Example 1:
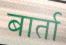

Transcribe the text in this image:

बार्ता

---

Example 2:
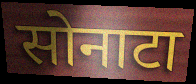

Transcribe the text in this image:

सोनाटा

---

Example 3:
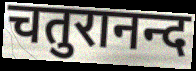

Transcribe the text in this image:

चतुरानन्द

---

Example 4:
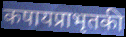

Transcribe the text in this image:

कषायप्राभृतकी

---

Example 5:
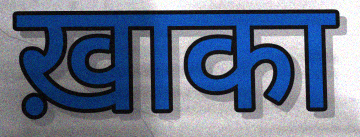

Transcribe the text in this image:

ख़ाका